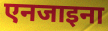
एनजाइना